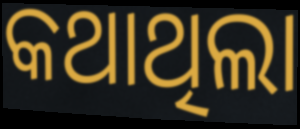
କଥାଥିଲା